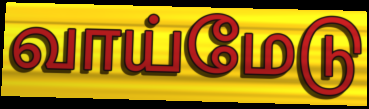
வாய்மேடு